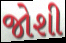
જોશી